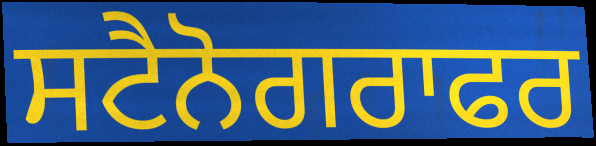
ਸਟੈਨੋਗਰਾਫਰ